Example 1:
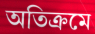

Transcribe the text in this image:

অতিক্ৰমে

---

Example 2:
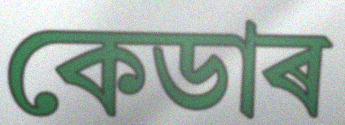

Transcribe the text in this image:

কেডাৰ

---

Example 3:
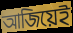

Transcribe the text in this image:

আজিয়েই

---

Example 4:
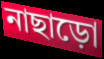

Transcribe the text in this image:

নাছাড়ো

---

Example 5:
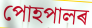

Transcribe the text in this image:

পোহপালৰ